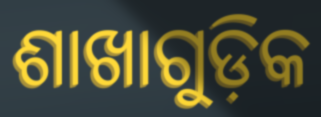
ଶାଖାଗୁଡ଼ିକ